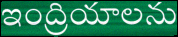
ఇంద్రియాలను